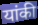
यांकी